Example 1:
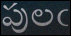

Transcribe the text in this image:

పులఁ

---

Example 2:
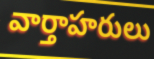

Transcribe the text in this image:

వార్తాహరులు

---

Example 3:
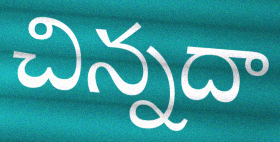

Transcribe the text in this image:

చిన్నదా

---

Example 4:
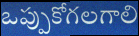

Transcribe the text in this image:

ఒప్పుకోగలగాలి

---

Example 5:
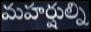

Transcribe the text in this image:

మహర్షుల్ని